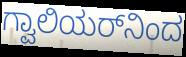
ಗ್ವಾಲಿಯರ್‌ನಿಂದ